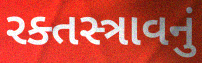
રક્તસ્ત્રાવનું